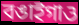
বঙাইগাও